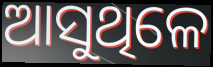
ଆସୁଥିଳେ